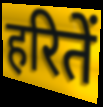
हरितें